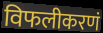
विफलीकरणं